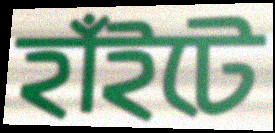
হাঁইটে